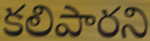
కలిపారని